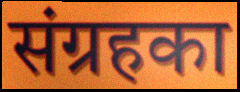
संग्रहका